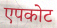
एपकोट